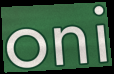
oni